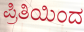
ಪ್ರಿತಿಯಿಂದ